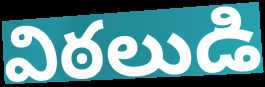
విఠలుడి